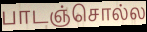
பாடஞ்சொல்ல